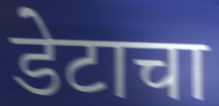
डेटाचा